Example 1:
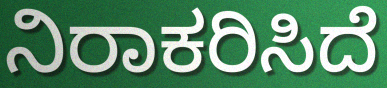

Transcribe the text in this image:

ನಿರಾಕರಿಸಿದೆ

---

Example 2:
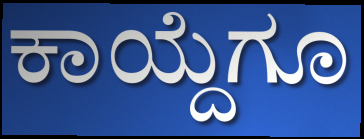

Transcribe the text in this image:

ಕಾಯ್ದೆಗೂ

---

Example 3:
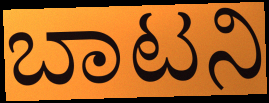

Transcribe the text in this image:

ಬಾಟನಿ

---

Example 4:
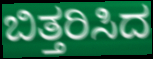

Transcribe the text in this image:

ಬಿತ್ತರಿಸಿದ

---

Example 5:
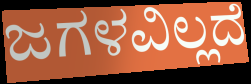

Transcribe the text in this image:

ಜಗಳವಿಲ್ಲದೆ